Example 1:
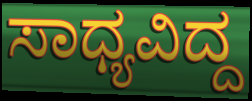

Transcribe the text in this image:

ಸಾಧ್ಯವಿದ್ದ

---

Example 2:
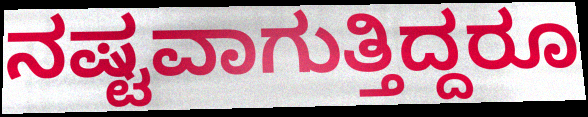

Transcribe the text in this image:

ನಷ್ಟವಾಗುತ್ತಿದ್ದರೂ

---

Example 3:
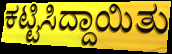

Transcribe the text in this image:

ಕಟ್ಟಿಸಿದ್ದಾಯಿತು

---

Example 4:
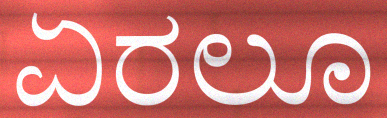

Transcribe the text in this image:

ಏರಲೂ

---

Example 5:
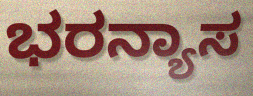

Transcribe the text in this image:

ಭರನ್ಯಾಸ